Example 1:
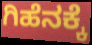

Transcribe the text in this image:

ಗಿಹೆನಕ್ಕೆ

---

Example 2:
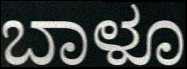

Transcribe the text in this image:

ಬಾಳೂ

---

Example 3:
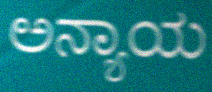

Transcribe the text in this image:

ಅನ್ಯಾಯ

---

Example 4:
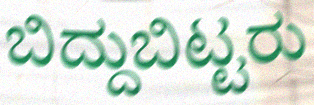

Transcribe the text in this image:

ಬಿದ್ದುಬಿಟ್ಟರು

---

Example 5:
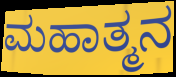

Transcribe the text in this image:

ಮಹಾತ್ಮನ